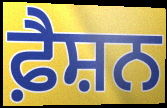
ਫ਼ੈਸ਼ਨ